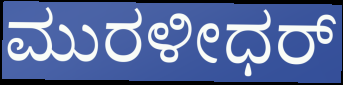
ಮುರಳೀಧರ್